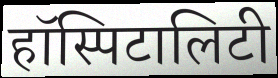
हॉस्पिटालिटी